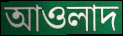
আওলাদ